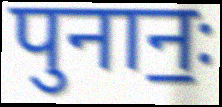
पुना॒नः